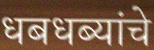
धबधब्यांचे